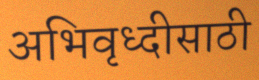
अभिवृध्दीसाठी